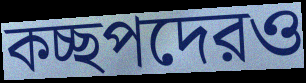
কচ্ছপদেরও